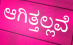
ಆಗಿತ್ತಲ್ಲವೆ